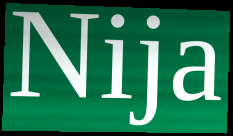
Nija